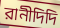
রানীদিদি